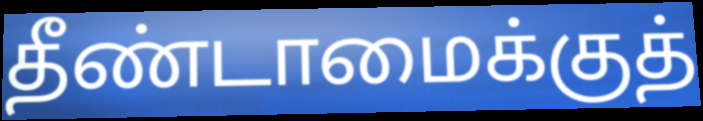
தீண்டாமைக்குத்